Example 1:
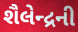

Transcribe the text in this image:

શૈલેન્દ્રની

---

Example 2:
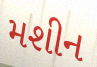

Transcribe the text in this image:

મશીન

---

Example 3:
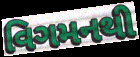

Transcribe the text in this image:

વિગમનથી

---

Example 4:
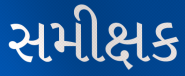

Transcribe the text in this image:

સમીક્ષક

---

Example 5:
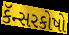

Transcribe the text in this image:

કૅન્સરકોષો